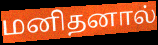
மனிதனால்